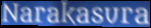
Narakasura